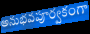
అనుభవపూర్వకంగా